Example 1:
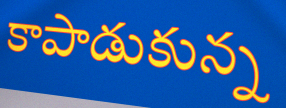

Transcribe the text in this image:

కాపాడుకున్న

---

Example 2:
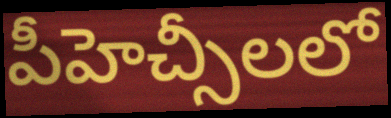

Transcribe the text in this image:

పీహెచ్సీలలో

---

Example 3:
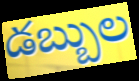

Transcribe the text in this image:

డబ్బుల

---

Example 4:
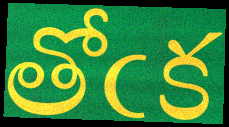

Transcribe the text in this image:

తోఁక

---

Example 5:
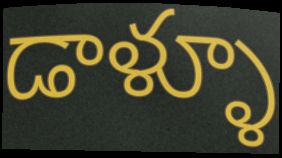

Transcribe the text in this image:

డాళ్ళూ